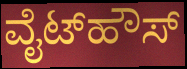
ವೈಟ್‌ಹೌಸ್